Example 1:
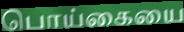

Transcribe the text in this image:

பொய்கையை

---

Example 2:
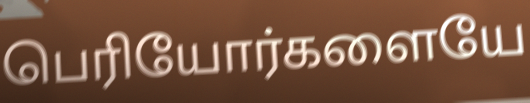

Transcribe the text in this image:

பெரியோர்களையே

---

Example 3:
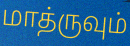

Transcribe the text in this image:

மாத்ருவும்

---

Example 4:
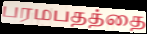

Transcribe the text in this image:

பரமபதத்தை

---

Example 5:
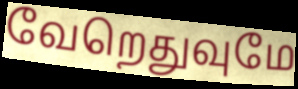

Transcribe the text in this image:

வேறெதுவுமே